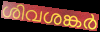
ശിവശങ്കർ